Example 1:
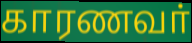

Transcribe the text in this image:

காரணவர்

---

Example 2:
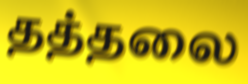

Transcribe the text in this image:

தத்தலை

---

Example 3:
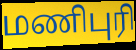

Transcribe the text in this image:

மணிபுரி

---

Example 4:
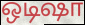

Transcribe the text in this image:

ஒடிஷா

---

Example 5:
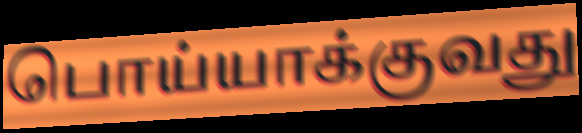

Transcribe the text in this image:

பொய்யாக்குவது